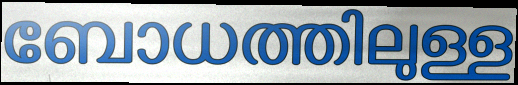
ബോധത്തിലുള്ള